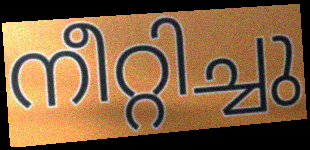
നീറ്റിച്ചു